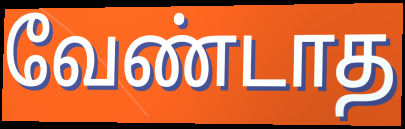
வேண்டாத